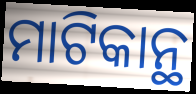
ମାଟିକାନ୍ଥ